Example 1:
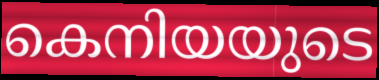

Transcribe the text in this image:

കെനിയയുടെ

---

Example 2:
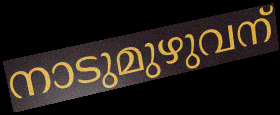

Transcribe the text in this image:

നാടുമുഴുവന്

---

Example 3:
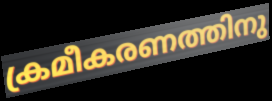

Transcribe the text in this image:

ക്രമീകരണത്തിനു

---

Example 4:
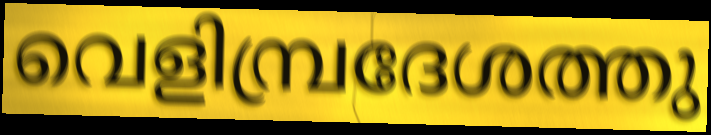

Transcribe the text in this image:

വെളിമ്പ്രദേശത്തു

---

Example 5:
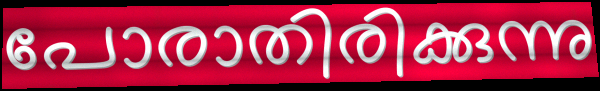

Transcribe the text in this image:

പോരാതിരിക്കുന്നു